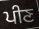
ਪੀਣ